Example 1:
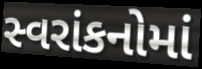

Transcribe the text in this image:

સ્વરાંકનોમાં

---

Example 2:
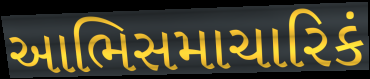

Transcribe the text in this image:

આભિસમાચારિકં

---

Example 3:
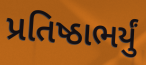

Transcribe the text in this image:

પ્રતિષ્ઠાભર્યું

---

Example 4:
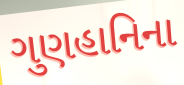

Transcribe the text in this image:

ગુણહાનિના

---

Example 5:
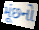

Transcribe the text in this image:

મૂંછનો